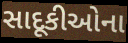
સાદૂકીઓના